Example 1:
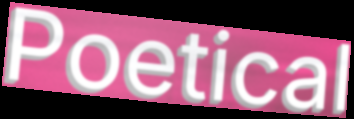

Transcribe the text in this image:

Poetical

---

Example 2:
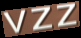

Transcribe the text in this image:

vzz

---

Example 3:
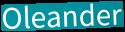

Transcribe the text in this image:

Oleander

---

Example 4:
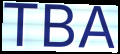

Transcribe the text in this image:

TBA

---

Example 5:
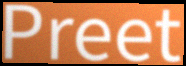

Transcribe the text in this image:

Preet